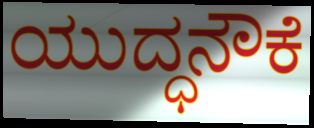
ಯುದ್ಧನೌಕೆ